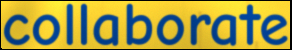
collaborate